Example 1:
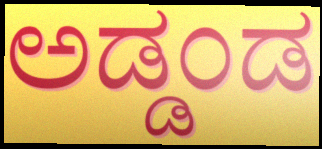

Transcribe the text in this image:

ಅಡ್ಡಂಡ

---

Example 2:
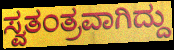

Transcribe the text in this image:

ಸ್ವತಂತ್ರವಾಗಿದ್ದು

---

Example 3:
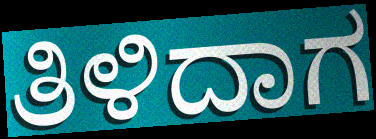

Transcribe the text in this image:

ತಿಳಿದಾಗ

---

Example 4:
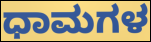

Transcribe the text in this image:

ಧಾಮಗಳ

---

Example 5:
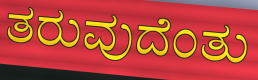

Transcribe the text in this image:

ತರುವುದೆಂತು